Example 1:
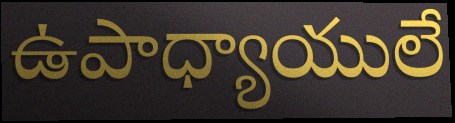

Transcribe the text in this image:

ఉపాధ్యాయులే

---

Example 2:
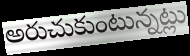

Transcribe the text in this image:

అరుచుకుంటున్నట్లు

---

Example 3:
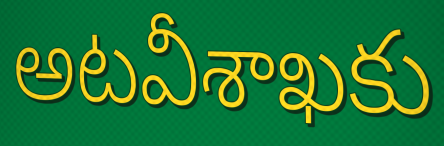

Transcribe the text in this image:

అటవీశాఖకు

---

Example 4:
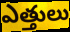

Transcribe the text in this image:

ఎత్తులు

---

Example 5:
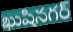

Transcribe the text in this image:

ఖుషినగర్